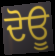
ਦੋਊ